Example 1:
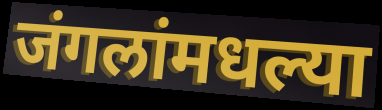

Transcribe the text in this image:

जंगलांमधल्या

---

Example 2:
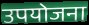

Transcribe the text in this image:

उपयोजना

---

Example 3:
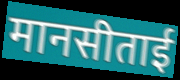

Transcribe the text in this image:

मानसीताई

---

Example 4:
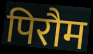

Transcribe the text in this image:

पिरौम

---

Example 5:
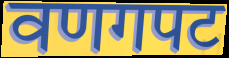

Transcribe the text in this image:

वणगपट